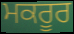
ਮਕਰੂਰ